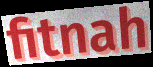
fitnah